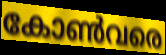
കോൺവരെ